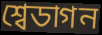
শ্বেডাগন